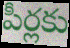
పీర్లకు